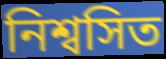
নিশ্বসিত